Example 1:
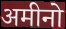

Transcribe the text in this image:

अमीनो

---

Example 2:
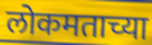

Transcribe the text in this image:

लोकमताच्या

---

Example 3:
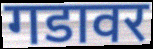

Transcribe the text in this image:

गडावर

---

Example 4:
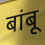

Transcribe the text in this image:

बांबू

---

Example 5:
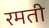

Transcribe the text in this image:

रमती